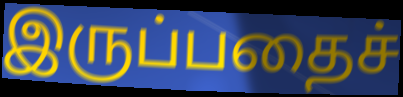
இருப்பதைச்